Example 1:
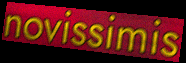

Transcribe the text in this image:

novissimis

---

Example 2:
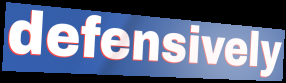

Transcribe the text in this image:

defensively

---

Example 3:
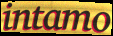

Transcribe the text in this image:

intamo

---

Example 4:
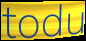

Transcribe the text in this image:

todu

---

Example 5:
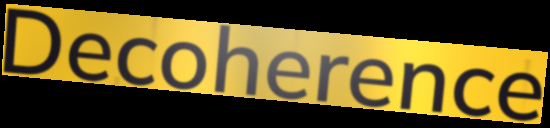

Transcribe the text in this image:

Decoherence